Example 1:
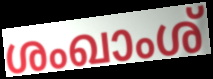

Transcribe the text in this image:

ശംഖാംശ്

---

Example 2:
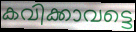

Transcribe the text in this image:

കവിക്കാവട്ടെ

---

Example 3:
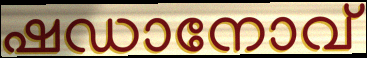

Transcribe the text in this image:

ഷഡാനോവ്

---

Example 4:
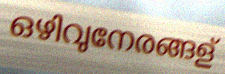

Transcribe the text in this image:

ഒഴിവുനേരങ്ങള്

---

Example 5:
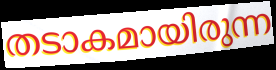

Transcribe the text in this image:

തടാകമായിരുന്ന